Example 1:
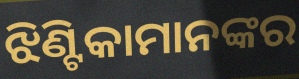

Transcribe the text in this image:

ଝିଣ୍ଟିକାମାନଙ୍କର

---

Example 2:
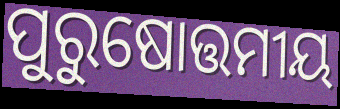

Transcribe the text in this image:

ପୁରୁଷୋତ୍ତମୀୟ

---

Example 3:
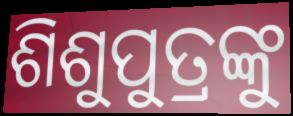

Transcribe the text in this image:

ଶିଶୁପୁତ୍ରଙ୍କୁ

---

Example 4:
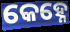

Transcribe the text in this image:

କେହ୍ନେ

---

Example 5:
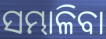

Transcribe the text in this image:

ସମ୍ଭାଳିବା